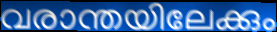
വരാന്തയിലേക്കും